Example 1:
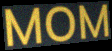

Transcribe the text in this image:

MOM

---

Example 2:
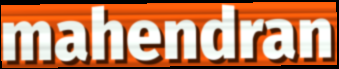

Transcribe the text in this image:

mahendran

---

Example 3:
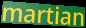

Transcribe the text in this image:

martian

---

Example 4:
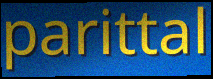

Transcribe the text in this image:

parittal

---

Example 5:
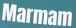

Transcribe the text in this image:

Marmam